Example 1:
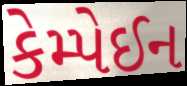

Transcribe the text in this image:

કેમ્પેઈન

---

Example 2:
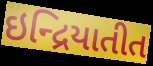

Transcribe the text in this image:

ઇન્દ્રિયાતીત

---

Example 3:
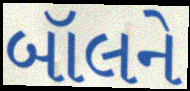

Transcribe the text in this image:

બૉલને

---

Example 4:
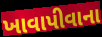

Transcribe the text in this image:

ખાવાપીવાના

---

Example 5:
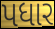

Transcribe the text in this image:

પધાર